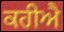
ਕਹੀਐ